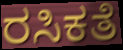
ರಸಿಕತೆ